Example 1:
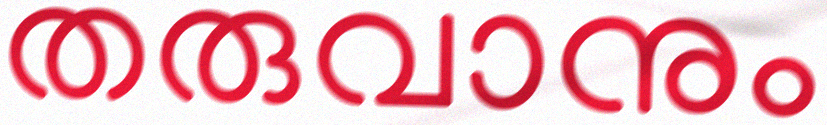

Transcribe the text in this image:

തരുവാനും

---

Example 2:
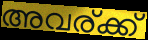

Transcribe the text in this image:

അവര്ക്ക്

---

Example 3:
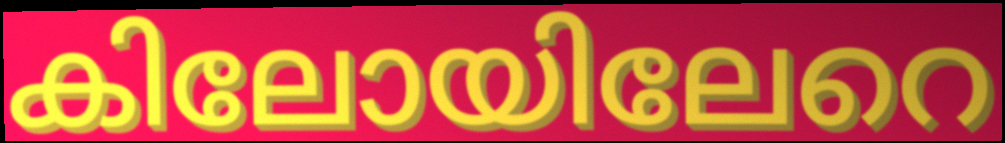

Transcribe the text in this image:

കിലോയിലേറെ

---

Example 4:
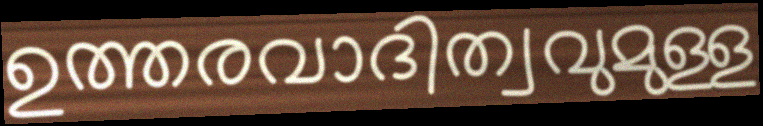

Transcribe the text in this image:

ഉത്തരവാദിത്വവുമുള്ള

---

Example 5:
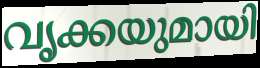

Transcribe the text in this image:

വൃക്കയുമായി